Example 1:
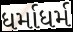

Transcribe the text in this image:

ધર્માધર્મ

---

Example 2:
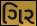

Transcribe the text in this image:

ગિર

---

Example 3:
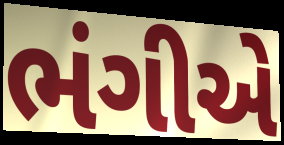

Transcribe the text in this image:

ભંગીએ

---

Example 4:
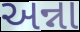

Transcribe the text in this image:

અન્ના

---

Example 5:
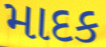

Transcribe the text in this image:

માદક